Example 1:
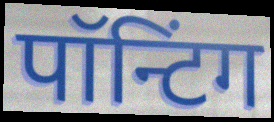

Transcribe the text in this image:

पॉन्टिंग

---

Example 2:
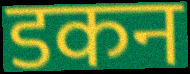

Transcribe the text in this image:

डकन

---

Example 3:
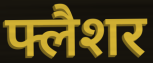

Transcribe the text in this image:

फ्लैशर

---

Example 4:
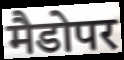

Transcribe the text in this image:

मैडोपर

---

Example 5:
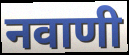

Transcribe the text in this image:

नवाणी